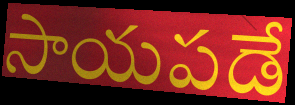
సాయపడే